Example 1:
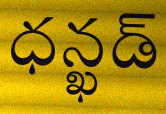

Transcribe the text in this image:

ధన్ఖడ్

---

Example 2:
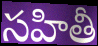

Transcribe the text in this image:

సహితీ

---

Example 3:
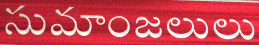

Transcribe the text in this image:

సుమాంజలులు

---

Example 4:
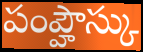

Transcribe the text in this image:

పంప్హౌస్కు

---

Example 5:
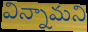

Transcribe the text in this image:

విన్నామని